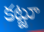
కట్జూ